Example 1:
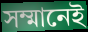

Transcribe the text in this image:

সম্মানেই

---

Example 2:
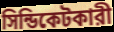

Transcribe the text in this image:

সিন্ডিকেটকারী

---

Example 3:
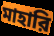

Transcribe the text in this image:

মাহারি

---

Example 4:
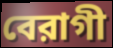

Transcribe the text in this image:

বেরাগী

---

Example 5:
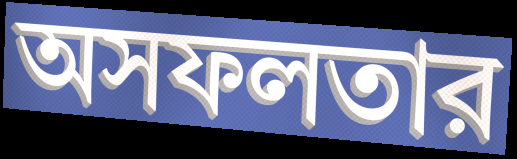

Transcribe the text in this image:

অসফলতার